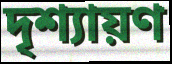
দৃশ্যায়ণ